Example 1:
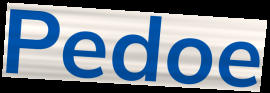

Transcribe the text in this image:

Pedoe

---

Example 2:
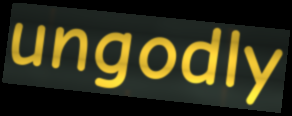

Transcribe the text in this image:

ungodly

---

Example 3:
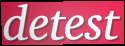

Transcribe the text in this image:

detest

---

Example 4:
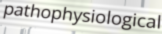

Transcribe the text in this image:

pathophysiological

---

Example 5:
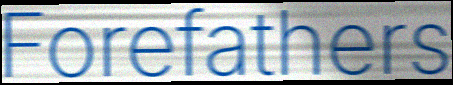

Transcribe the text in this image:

Forefathers